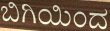
ಬಿಗಿಯಿಂದ